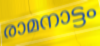
രാമനാട്ടം